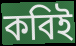
কবিই